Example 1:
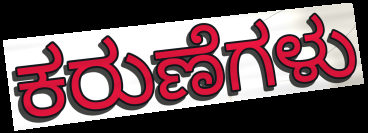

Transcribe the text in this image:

ಕರುಣೆಗಳು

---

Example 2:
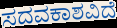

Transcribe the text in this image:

ಸದವಕಾಶವಿದೆ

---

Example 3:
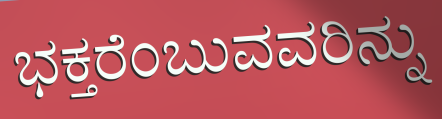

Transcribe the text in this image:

ಭಕ್ತರೆಂಬುವವರಿನ್ನು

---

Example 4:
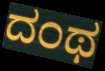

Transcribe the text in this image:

ದಂಥ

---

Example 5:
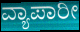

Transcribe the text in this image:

ವ್ಯಾಪಾರೀ